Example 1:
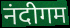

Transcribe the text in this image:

नंदीगम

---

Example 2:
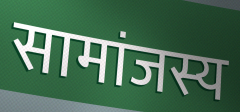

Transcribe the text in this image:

सामांजस्य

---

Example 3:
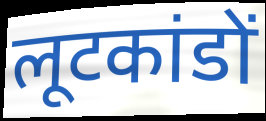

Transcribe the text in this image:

लूटकांडों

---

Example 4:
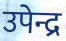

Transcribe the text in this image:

उपेन्द्र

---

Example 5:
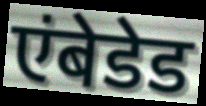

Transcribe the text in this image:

एंबेडेड